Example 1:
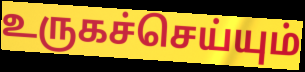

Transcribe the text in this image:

உருகச்செய்யும்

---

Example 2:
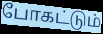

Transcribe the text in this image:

போகட்டும்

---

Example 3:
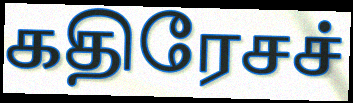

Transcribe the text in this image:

கதிரேசச்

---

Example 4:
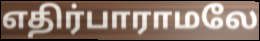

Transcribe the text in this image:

எதிர்பாராமலே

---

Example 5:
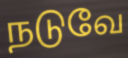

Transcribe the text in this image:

நடுவே